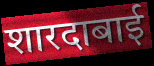
शारदाबाई